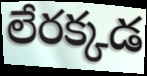
లేరక్కడ